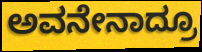
ಅವನೇನಾದ್ರೂ